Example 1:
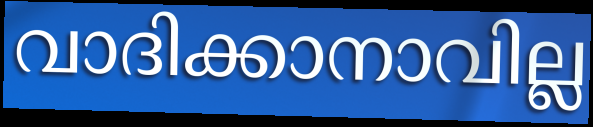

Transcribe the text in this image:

വാദിക്കാനാവില്ല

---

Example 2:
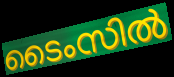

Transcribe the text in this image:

ടൈംസിൽ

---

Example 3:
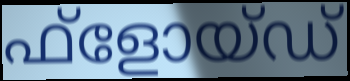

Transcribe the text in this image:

ഫ്ളോയ്ഡ്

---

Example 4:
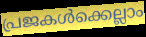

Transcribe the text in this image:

പ്രജകൾക്കെല്ലാം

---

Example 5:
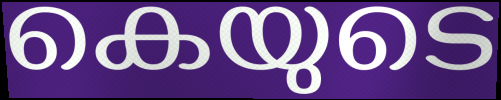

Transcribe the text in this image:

കെയുടെ